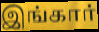
இங்கார்